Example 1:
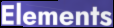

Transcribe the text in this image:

Elements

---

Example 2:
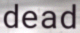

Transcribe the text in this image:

dead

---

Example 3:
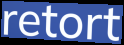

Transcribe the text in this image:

retort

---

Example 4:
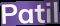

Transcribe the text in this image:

Patil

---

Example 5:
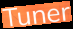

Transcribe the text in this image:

Tuner